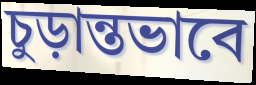
চুড়ান্তভাবে